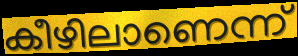
കീഴിലാണെന്ന്